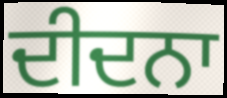
ਦੀਦਨਾ